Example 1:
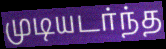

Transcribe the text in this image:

முடியடர்ந்த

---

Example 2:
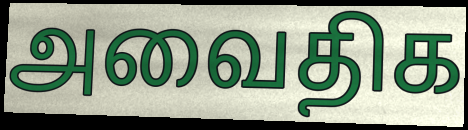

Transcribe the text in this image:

அவைதிக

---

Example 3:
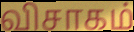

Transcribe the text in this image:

விசாகம்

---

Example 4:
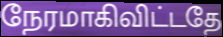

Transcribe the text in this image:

நேரமாகிவிட்டதே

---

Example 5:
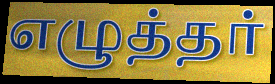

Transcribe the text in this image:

எழுத்தர்